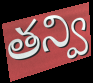
తన్వి